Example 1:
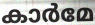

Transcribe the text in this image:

കാർമേ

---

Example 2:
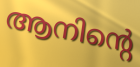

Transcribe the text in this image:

ആനിന്റെ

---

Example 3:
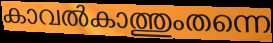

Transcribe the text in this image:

കാവൽകാത്തുംതന്നെ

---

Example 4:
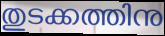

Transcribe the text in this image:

തുടക്കത്തിനു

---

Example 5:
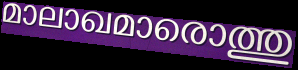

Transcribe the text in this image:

മാലാഖമാരൊത്തു